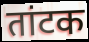
तांटक